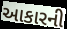
આકારની